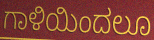
ಗಾಳಿಯಿಂದಲೂ